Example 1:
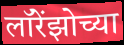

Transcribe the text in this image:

लॉरेंझोच्या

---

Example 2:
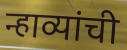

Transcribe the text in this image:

न्हाव्यांची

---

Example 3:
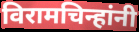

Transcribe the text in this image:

विरामचिन्हांनी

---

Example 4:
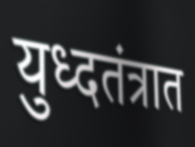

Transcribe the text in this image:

युध्दतंत्रात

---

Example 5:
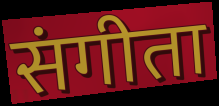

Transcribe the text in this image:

संगीता